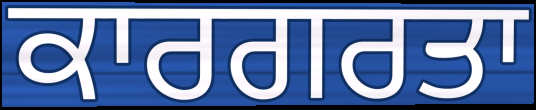
ਕਾਰਗਰਤਾ